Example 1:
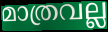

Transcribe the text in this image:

മാത്രവല്ല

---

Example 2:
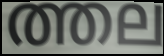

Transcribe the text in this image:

ത്തല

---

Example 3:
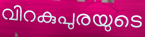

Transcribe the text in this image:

വിറകുപുരയുടെ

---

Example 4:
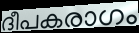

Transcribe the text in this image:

ദീപകരാഗം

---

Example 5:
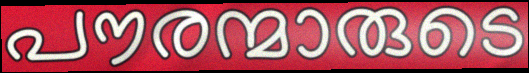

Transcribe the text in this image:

പൗരന്മാരുടെ